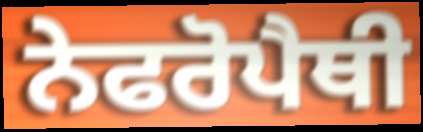
ਨੇਫਰੋਪੈਥੀ